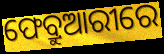
ଫେବ୍ରୁଆରୀରେ